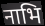
नाभि